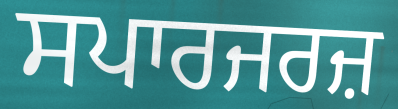
ਸਪਾਰਜਰਜ਼